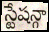
స్టేషన్గా